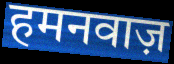
हमनवाज़